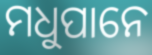
ମଧୁପାନେ